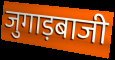
जुगाड़बाजी